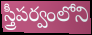
స్త్రీపర్వంలోని